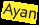
Ayan